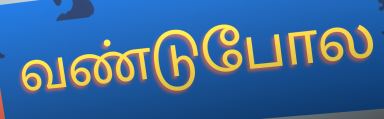
வண்டுபோல